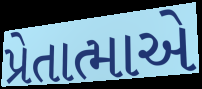
પ્રેતાત્માએ